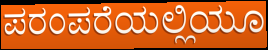
ಪರಂಪರೆಯಲ್ಲಿಯೂ